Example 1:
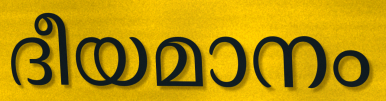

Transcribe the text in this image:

ദീയമാനം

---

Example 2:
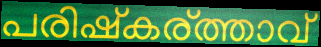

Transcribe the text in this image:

പരിഷ്കര്ത്താവ്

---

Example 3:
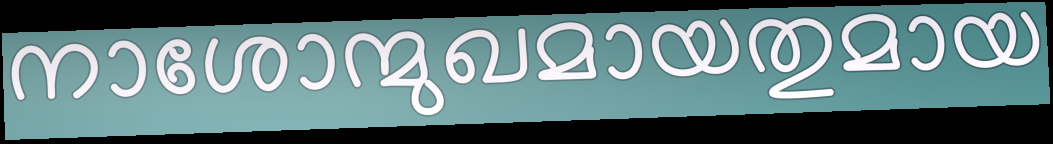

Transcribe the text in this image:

നാശോന്മുഖമായതുമായ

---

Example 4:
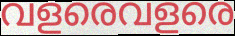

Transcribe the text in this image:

വളരെവളരെ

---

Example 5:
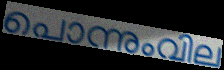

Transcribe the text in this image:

പൊന്നുംവില